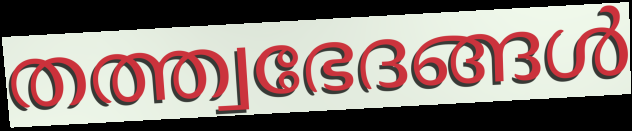
തത്ത്വഭേദങ്ങൾ